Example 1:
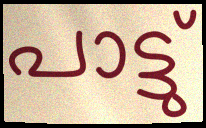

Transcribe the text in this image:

പാട്ടു്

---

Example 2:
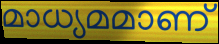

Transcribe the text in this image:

മാധ്യമമാണ്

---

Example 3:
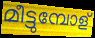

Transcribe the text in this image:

മീട്ടുമ്പോള്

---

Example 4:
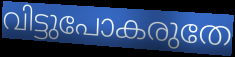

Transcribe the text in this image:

വിട്ടുപോകരുതേ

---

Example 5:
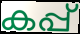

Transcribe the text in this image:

കപ്പ്